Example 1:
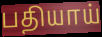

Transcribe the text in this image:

பதியாய்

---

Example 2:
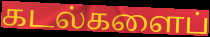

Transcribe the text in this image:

கடல்களைப்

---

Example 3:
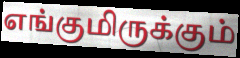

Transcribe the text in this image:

எங்குமிருக்கும்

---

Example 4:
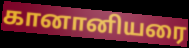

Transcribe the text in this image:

கானானியரை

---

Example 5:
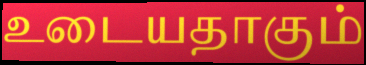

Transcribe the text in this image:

உடையதாகும்